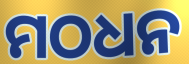
ମଠଧନ